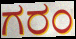
ಗರಂ